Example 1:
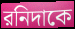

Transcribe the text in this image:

রনিদাকে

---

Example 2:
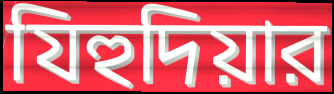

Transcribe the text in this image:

যিহুদিয়ার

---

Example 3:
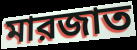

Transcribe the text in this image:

মারজাত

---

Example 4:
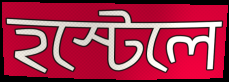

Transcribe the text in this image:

হস্টেলে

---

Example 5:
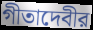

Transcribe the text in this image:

গীতাদেবীর